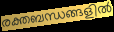
രക്തബന്ധങ്ങളിൽ